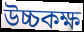
উচ্চকক্ষ